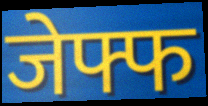
जेफ्फ